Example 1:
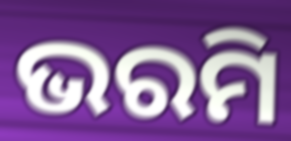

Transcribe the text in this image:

ଭରମି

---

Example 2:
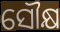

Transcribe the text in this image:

ସୌକ୍ଷ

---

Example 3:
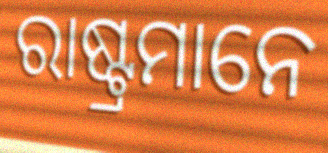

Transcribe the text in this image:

ରାଷ୍ଟ୍ରମାନେ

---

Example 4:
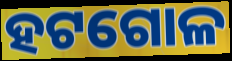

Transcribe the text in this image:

ହଟଗୋଳ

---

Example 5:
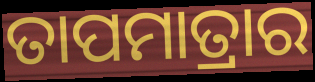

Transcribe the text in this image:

ତାପମାତ୍ରାର